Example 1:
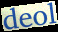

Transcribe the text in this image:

deol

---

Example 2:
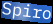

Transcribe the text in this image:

Spiro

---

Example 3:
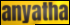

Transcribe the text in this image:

anyatha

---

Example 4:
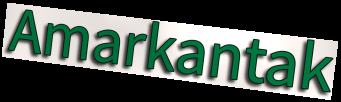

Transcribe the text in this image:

Amarkantak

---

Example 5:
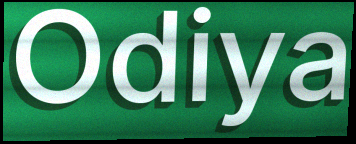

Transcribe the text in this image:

Odiya